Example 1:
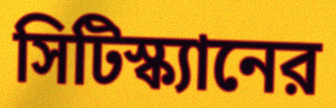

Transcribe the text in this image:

সিটিস্ক্যানের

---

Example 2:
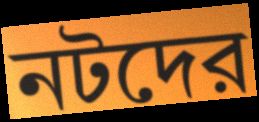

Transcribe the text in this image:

নটদের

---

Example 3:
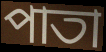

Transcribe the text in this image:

পাতা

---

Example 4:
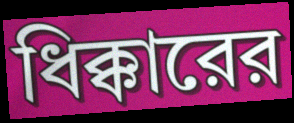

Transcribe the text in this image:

ধিক্কারের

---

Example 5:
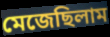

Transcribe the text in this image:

মেজেছিলাম